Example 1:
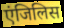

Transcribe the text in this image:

एंजिलिस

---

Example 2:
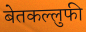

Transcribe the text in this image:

बेतकल्लुफी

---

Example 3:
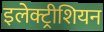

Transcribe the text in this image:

इलेक्ट्रीशियन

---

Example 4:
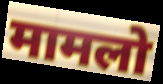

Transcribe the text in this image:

मामलो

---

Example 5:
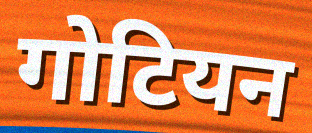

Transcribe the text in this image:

गोटियन